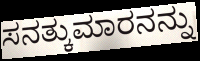
ಸನತ್ಕುಮಾರನನ್ನು